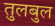
तुलबुल